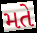
મતે